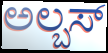
ಅಲ್ಬಸ್